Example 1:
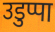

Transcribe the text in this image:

उडुप्पा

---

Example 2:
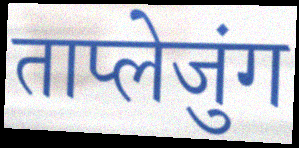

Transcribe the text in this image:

ताप्लेजुंग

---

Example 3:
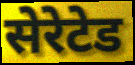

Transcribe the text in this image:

सेरेटेड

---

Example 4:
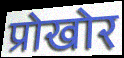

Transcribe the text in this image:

प्रोखोर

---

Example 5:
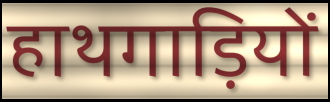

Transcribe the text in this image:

हाथगाड़ियों